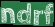
ndrf